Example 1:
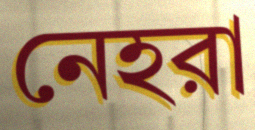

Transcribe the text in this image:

নেহরা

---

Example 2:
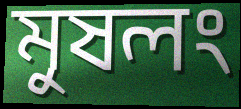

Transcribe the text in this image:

মুষলং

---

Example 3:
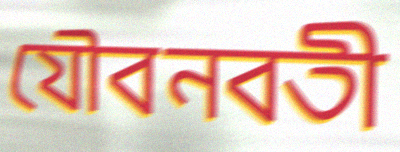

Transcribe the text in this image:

যৌবনবতী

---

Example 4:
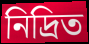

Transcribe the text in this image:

নিদ্রিত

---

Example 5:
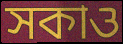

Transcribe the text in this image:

সকাও